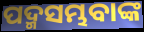
ପଦ୍ମସମ୍ଭବାଙ୍କ